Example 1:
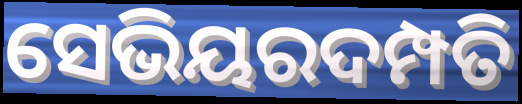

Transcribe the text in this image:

ସେଭିୟରଦମ୍ପତି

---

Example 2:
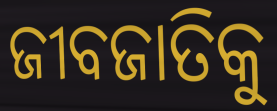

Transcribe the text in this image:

ଜୀବଜାତିକୁ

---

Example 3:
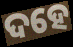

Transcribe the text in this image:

ଦହେ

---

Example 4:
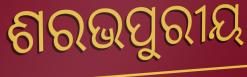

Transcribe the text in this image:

ଶରଭପୁରୀୟ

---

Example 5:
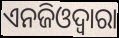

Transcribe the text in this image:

ଏନଜିଓଦ୍ୱାରା